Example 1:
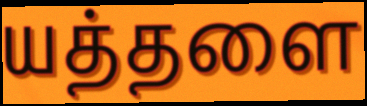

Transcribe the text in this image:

யத்தளை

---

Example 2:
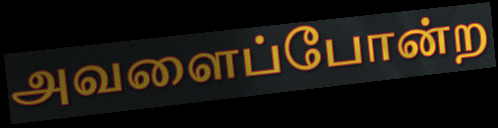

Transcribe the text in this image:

அவளைப்போன்ற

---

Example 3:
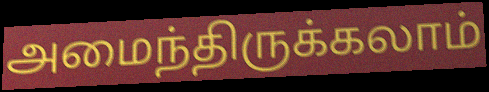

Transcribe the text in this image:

அமைந்திருக்கலாம்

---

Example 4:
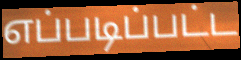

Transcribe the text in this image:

எப்படிப்பட்ட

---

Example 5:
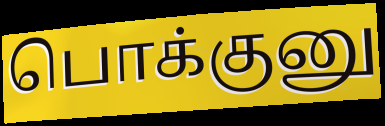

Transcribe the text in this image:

பொக்குனு